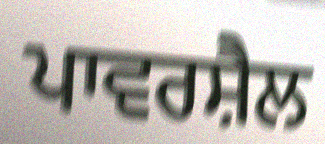
ਪਾਵਰਸ਼ੈਲ